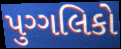
પુગ્ગલિકો